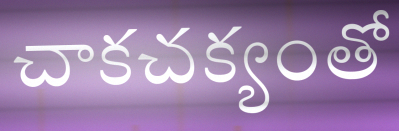
చాకచక్యంతో